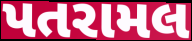
પતરામલ